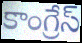
కాంగ్రేస్